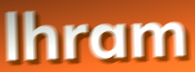
lhram